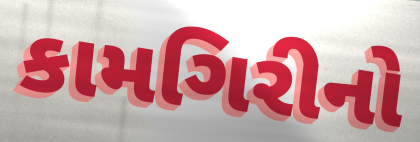
કામગિરીનો